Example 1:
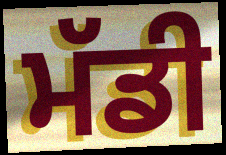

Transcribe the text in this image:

ਮੱਡੀ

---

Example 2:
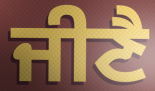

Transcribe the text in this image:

ਜੀਣੈ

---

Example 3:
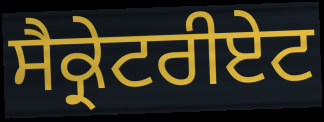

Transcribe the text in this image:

ਸੈਕ੍ਰੇਟਰੀਏਟ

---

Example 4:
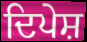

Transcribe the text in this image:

ਦਿਪੇਸ਼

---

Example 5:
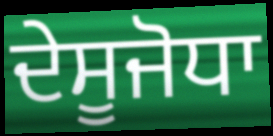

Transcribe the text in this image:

ਦੇਸੂਜੋਧਾ